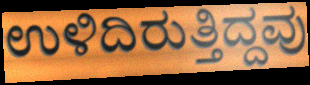
ಉಳಿದಿರುತ್ತಿದ್ದವು